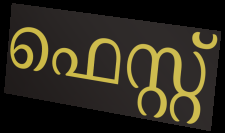
ഫെസ്റ്റ്